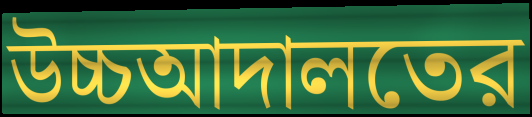
উচ্চআদালতের